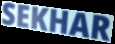
SEKHAR